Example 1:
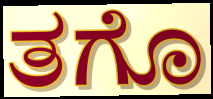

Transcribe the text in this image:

ತಗೊ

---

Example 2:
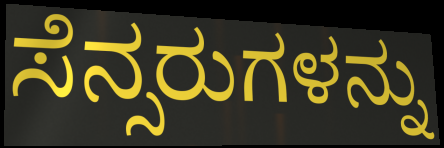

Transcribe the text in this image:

ಸೆನ್ಸರುಗಳನ್ನು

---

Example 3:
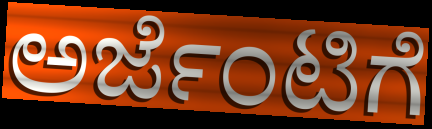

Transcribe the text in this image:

ಅರ್ಜೆಂಟಿಗೆ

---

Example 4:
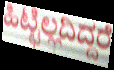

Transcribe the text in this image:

ಹಿಟ್ಟಿಲ್ಲದಿದ್ದರೆ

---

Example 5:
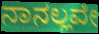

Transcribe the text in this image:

ನಾನಲ್ಲವೇ